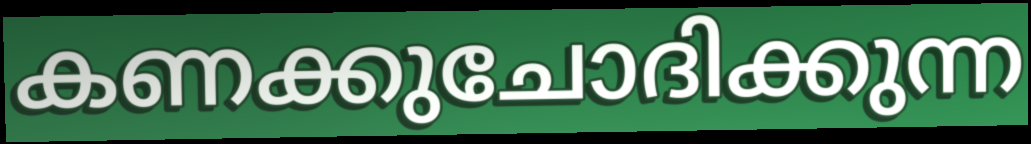
കണക്കുചോദിക്കുന്ന